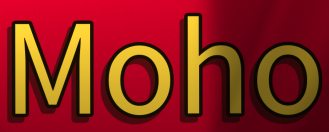
Moho